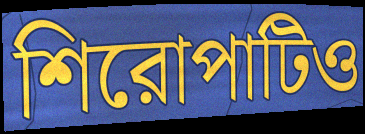
শিরোপাটিও